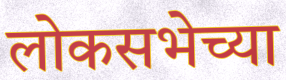
लोकसभेच्या